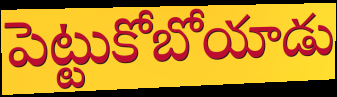
పెట్టుకోబోయాడు